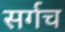
सर्गच